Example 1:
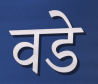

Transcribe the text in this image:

वडे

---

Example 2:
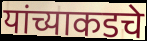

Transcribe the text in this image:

यांच्याकडचे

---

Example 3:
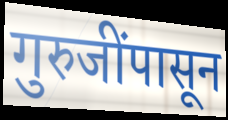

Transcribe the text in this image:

गुरुजींपासून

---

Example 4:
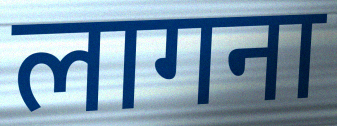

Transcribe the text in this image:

लागना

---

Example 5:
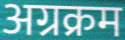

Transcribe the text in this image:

अग्रक्रम